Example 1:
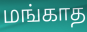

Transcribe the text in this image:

மங்காத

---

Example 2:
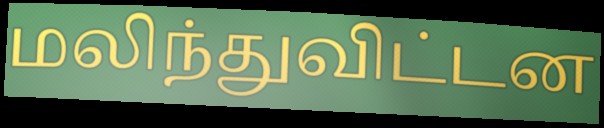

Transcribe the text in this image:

மலிந்துவிட்டன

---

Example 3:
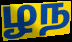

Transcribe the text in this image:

ழந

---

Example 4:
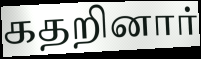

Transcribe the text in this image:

கதறினார்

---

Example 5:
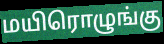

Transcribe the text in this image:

மயிரொழுங்கு